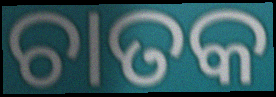
ଚାତକ